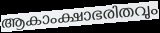
ആകാംക്ഷാഭരിതവും